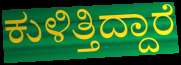
ಕುಳಿತ್ತಿದ್ದಾರೆ